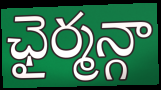
ఛైర్మన్గా